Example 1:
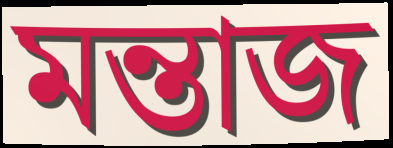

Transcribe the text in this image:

মন্তাজ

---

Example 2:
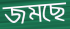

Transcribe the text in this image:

জমছে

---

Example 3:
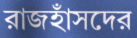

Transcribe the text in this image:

রাজহাঁসদের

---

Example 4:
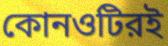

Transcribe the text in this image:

কোনওটিরই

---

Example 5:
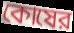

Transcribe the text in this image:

কোষের